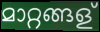
മാറ്റങ്ങള്